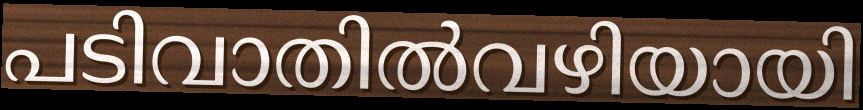
പടിവാതിൽവഴിയായി